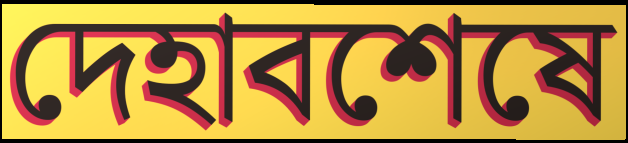
দেহাবশেষে